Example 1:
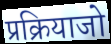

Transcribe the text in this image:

प्रक्रियाजो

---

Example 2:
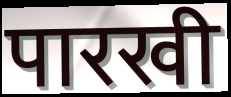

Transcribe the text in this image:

पारखी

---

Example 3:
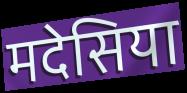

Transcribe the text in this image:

मदेसिया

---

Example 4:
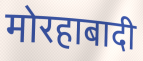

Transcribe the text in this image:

मोरहाबादी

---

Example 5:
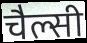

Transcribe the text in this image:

चैल्सी